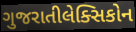
ગુજરાતીલેક્સિકોન